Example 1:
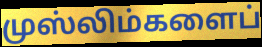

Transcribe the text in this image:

முஸ்லிம்களைப்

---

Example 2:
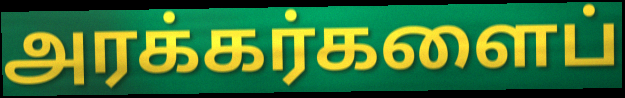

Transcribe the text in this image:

அரக்கர்களைப்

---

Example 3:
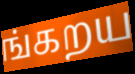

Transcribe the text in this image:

ங்கறய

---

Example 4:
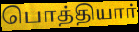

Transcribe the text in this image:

பொத்தியார்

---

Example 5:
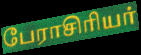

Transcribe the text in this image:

பேராசிரியர்